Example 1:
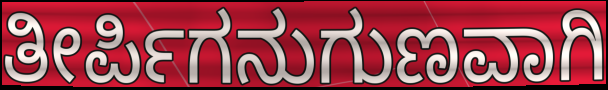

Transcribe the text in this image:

ತೀರ್ಪಿಗನುಗುಣವಾಗಿ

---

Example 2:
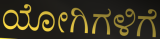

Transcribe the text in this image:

ಯೋಗಿಗಳಿಗೆ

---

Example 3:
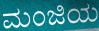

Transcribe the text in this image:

ಮಂಜಿಯ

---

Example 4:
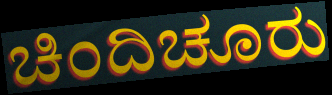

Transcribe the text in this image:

ಚಿಂದಿಚೂರು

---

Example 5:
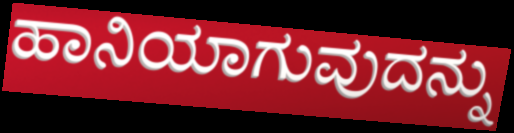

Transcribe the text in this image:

ಹಾನಿಯಾಗುವುದನ್ನು